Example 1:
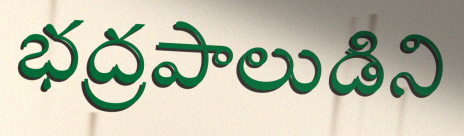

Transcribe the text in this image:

భద్రపాలుడిని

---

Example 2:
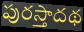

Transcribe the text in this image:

పురస్తాదథ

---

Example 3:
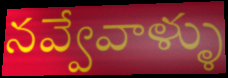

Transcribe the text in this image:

నవ్వేవాళ్ళు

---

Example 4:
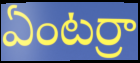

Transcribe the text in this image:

ఏంటర్రా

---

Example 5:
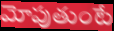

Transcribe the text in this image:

మోపుతుంటే